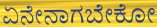
ಏನೇನಾಗಬೇಕೋ